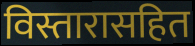
विस्तारासहित